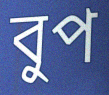
বুপ